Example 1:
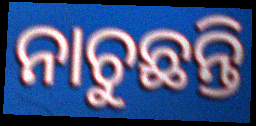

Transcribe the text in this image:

ନାଚୁଛନ୍ତି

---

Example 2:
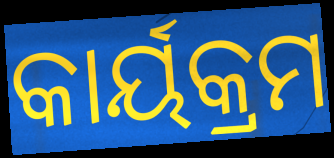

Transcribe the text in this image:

କାର୍ୟକ୍ରମ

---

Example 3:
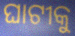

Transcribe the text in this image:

ଘାଟୀକୁ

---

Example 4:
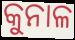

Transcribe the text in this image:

କୁନାଳ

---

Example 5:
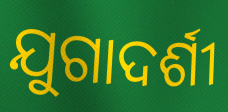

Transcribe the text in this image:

ଯୁଗାଦର୍ଶୀ